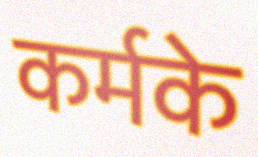
कर्मके